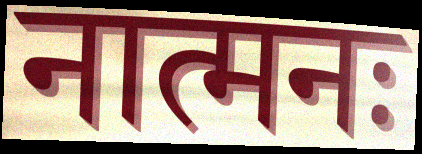
नात्मनः